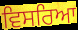
ਵਿਸਰਿਆ